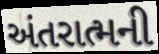
અંતરાત્મની